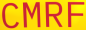
CMRF